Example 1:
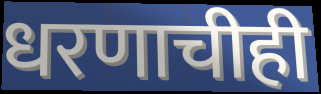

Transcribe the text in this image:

धरणाचीही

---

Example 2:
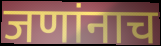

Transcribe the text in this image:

जणांनाच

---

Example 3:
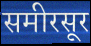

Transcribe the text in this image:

समीरसूर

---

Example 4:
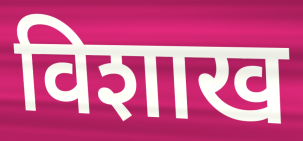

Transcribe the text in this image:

विशाख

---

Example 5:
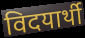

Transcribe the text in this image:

विदयार्थी